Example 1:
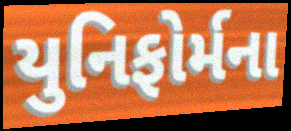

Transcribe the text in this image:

યુનિફોર્મના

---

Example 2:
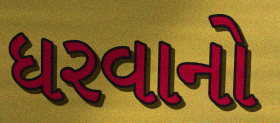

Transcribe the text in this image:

ધરવાનો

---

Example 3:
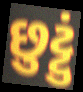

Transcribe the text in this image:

છુટ્ટું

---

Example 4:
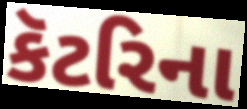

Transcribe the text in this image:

કૅટરિના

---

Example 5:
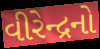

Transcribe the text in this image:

વીરેન્દ્રનો